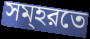
সম্হরতে